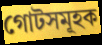
গোটসমূহক